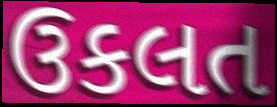
ઉકલત